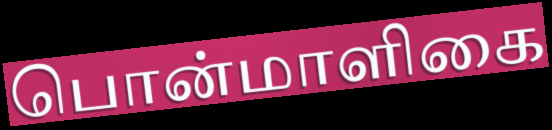
பொன்மாளிகை